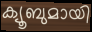
ക്യൂബുമായി